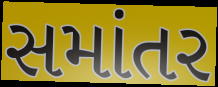
સમાંતર